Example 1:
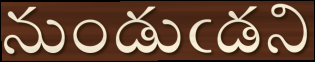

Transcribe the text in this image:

నుండుఁడని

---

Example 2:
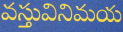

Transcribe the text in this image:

వస్తువినిమయ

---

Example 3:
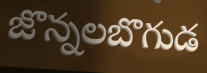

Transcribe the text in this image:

జొన్నలబొగుడ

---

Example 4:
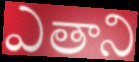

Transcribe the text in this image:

ఎతాని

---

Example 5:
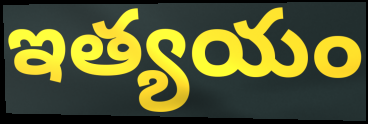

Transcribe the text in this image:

ఇత్యయం